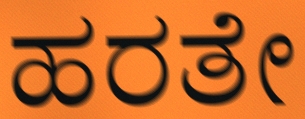
ಹರತೇ